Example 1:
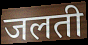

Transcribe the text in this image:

जलती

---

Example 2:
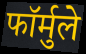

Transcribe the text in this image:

फॉर्मुले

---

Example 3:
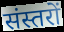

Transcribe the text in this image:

संस्तरों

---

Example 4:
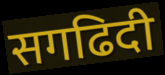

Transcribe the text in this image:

सगढिदी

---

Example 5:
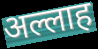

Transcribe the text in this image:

अल्लाह